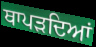
ਥਾਪੜਦਿਆਂ